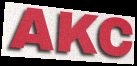
AKC